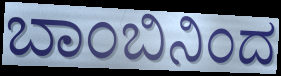
ಬಾಂಬಿನಿಂದ